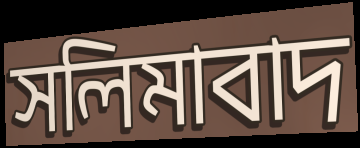
সলিমাবাদ